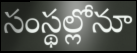
సంస్థల్లోనూ